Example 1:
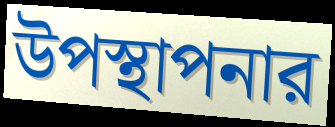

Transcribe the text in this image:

উপস্থাপনার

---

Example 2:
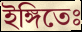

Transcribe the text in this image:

ইঙ্গিতেঃ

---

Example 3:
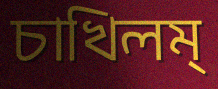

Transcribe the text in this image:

চাখিলম্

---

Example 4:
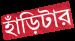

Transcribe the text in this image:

হাঁড়িটার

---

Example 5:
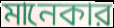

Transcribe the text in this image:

মানেকার